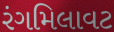
રંગમિલાવટ